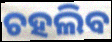
ଚହଲିବ